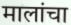
मालांचा